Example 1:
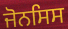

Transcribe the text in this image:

ਜੋਨਸਿਸ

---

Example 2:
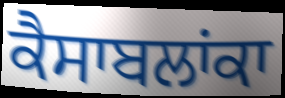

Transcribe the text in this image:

ਕੈਸਾਬਲਾਂਕਾ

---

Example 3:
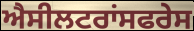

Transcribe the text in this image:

ਐਸੀਲਟਰਾਂਸਫਰੇਸ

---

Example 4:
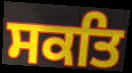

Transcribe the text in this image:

ਸਕਤਿ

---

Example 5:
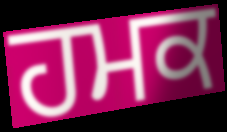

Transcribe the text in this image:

ਹਮਕ